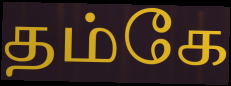
தம்கே